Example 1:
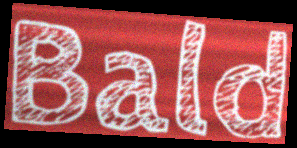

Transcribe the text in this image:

Bald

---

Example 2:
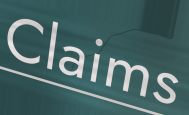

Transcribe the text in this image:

Claims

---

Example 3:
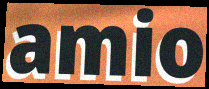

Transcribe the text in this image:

amio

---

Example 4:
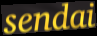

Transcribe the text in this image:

sendai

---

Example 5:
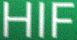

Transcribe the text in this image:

HIF